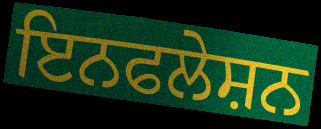
ਇਨਫਲੇਸ਼ਨ